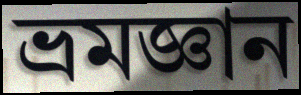
ভ্রমজ্ঞান